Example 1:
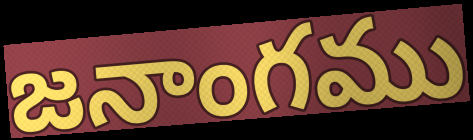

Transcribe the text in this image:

జనాంగము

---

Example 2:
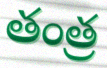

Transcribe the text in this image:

తంత్ర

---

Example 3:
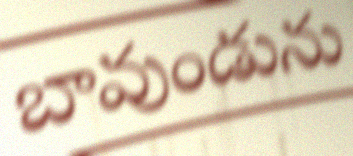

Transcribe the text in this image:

బావుండును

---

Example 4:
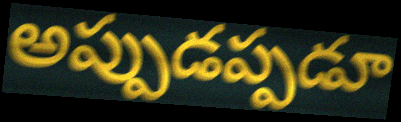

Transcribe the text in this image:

అప్పుడప్పడూ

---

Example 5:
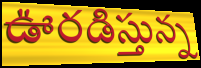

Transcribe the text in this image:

ఊరడిస్తున్న